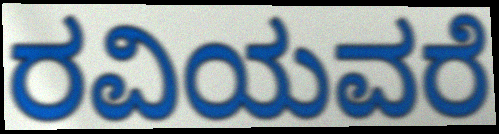
ರವಿಯವರೆ